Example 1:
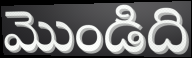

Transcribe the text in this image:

మొండిది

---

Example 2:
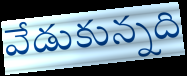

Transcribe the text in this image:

వేడుకున్నది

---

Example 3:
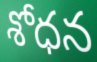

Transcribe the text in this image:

శోధన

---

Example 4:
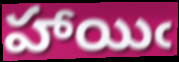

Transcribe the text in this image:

హాయిఁ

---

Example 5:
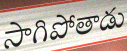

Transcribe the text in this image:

సాగిపోతాడు